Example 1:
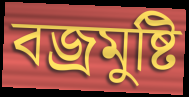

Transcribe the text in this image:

বজ্রমুষ্টি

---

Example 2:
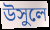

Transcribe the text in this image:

উসুলে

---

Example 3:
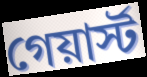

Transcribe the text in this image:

গেয়ার্স্ট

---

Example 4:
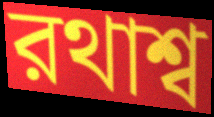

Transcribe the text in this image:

রথাশ্ব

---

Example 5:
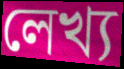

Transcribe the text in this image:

লেখ্য